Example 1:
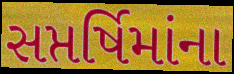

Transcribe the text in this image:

સપ્તર્ષિમાંના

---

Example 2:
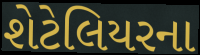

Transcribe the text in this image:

શેટેલિયરના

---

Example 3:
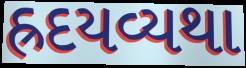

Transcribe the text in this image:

હ્રદયવ્યથા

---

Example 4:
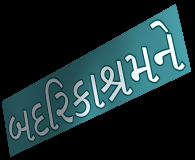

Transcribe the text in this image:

બદરિકાશ્રમને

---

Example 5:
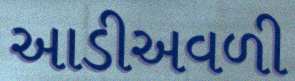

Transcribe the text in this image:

આડીઅવળી